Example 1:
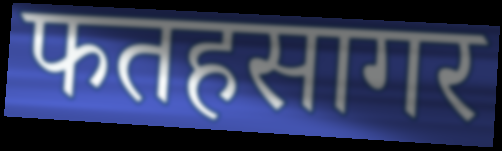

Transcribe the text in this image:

फतहसागर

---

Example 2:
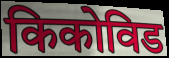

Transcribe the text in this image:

किकोविड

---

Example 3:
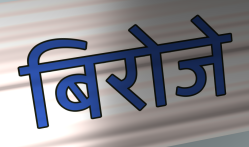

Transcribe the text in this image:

बिरोजे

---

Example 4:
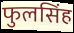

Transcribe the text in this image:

फुलसिंह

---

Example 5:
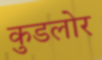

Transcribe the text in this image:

कुडलोर